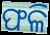
ଫଳି